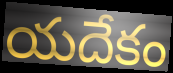
యదేకం